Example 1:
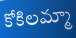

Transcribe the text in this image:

కోకిలమ్మా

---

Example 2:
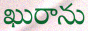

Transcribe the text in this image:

ఖురాను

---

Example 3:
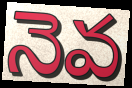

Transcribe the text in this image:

నెవ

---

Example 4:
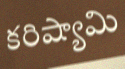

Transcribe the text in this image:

కరిష్యామి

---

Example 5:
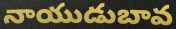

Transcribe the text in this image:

నాయుడుబావ